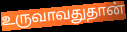
உருவாவதுதான்